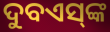
ଦୁବଏସ୍‌ଙ୍କ